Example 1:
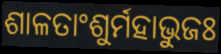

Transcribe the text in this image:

ଶାଳତାଂଶୁର୍ମହାଭୁଜଃ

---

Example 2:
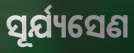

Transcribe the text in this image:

ସୂର୍ଯ୍ୟସେଣ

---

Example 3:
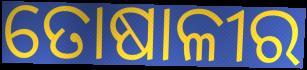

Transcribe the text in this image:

ତୋଷାଳୀର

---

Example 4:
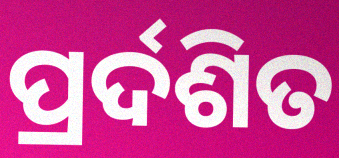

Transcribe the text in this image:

ପ୍ରର୍ଦଶିତ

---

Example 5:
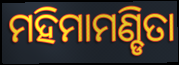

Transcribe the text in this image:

ମହିମାମଣ୍ଡିତା